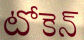
టోకెన్